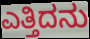
ಎತ್ತಿದನು